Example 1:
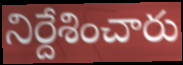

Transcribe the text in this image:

నిర్దేశించారు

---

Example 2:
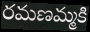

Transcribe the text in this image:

రమణమ్మకి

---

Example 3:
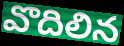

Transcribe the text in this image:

వొదిలిన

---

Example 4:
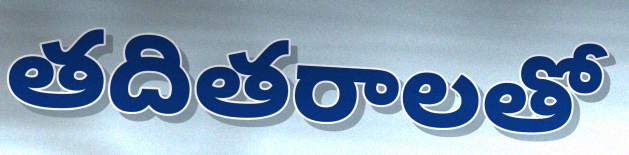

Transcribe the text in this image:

తదితరాలతో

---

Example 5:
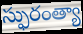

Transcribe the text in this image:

స్ఫురంత్యా